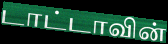
டாட்டாவின்